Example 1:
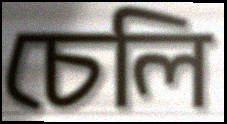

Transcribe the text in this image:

চেলি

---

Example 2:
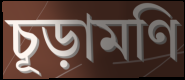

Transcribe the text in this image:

চূড়ামণি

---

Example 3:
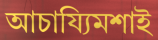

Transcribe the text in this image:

আচায্যিমশাই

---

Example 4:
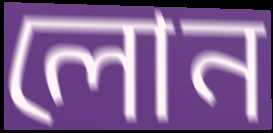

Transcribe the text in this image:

লোন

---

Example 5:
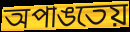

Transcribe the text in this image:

অপাঙতেয়